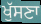
ਖੁੱਸਣਾ